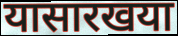
यासारखया